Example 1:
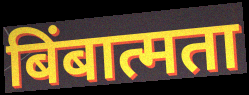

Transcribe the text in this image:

बिंबात्मता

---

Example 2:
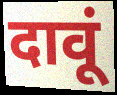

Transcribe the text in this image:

दावूं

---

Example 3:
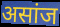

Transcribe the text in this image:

असांज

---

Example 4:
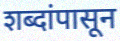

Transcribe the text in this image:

शब्दांपासून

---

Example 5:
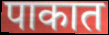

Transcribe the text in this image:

पाकात